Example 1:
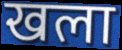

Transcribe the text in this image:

खला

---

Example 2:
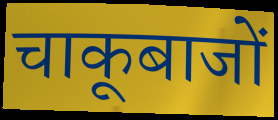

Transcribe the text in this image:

चाकूबाजों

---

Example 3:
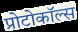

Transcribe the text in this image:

प्रोटोकॉल्स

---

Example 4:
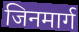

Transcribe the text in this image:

जिनमार्ग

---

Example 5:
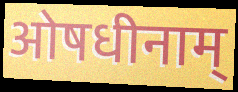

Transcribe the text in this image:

ओषधीनाम्